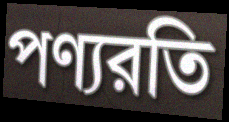
পণ্যরতি